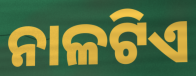
ନାଳଟିଏ